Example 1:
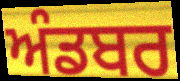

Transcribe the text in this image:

ਅੰਡਬਰ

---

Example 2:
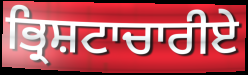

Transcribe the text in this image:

ਭ੍ਰਿਸ਼ਟਾਚਾਰੀਏ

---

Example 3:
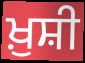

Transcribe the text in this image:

ਖ਼ੁਸ਼ੀ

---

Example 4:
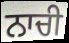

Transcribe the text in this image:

ਨਾਚੀ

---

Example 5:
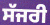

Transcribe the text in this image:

ਸੱਜਰੀ